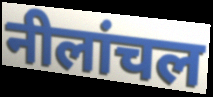
नीलांचल